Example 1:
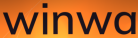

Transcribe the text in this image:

winwa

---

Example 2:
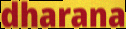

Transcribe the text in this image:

dharana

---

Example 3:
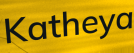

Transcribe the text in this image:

Katheya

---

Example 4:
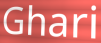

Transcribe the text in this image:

Ghari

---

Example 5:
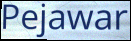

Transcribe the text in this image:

Pejawar